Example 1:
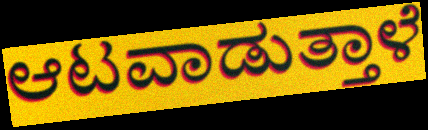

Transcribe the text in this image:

ಆಟವಾಡುತ್ತಾಳೆ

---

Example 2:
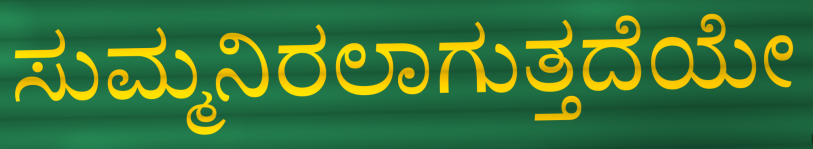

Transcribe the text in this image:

ಸುಮ್ಮನಿರಲಾಗುತ್ತದೆಯೇ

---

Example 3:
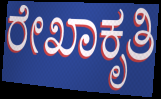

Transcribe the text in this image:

ರೇಖಾಕೃತಿ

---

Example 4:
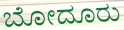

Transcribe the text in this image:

ಬೋದೂರು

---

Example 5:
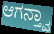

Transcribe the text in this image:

ಆಗನ್ತ್ವಾ